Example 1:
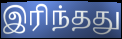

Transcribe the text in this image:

இரிந்தது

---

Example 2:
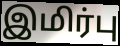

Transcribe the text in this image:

இமிர்பு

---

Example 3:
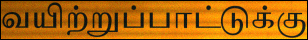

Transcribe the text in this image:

வயிற்றுப்பாட்டுக்கு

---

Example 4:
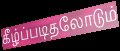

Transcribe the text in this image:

கீழ்ப்படிதலோடும்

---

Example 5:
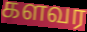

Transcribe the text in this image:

களவர